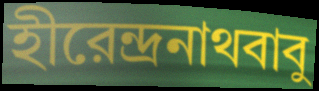
হীরেন্দ্রনাথবাবু